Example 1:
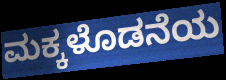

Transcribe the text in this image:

ಮಕ್ಕಳೊಡನೆಯ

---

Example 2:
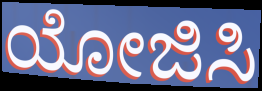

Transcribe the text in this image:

ಯೋಜಿಸಿ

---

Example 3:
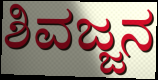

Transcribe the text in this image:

ಶಿವಜ್ಜನ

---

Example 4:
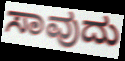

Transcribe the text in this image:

ಸಾವುದು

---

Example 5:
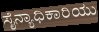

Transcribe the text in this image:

ಸೈನ್ಯಾಧಿಕಾರಿಯು